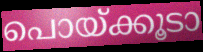
പൊയ്ക്കൂടാ